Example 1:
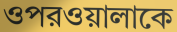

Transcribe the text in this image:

ওপরওয়ালাকে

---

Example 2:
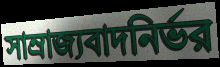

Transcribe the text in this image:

সাম্রাজ্যবাদনির্ভর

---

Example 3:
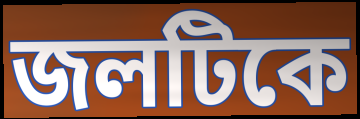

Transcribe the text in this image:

জলটিকে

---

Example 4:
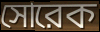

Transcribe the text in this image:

সোরেক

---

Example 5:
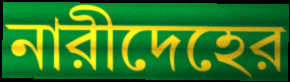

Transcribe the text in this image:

নারীদেহের